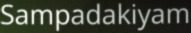
Sampadakiyam